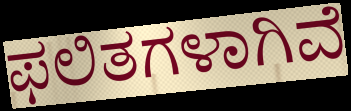
ಫಲಿತಗಳಾಗಿವೆ